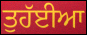
ਤੁਹੱਈਆ